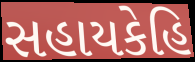
સહાયકેહિ